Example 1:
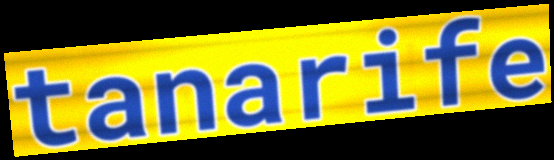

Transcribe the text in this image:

tanarife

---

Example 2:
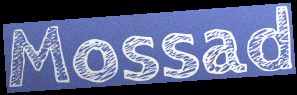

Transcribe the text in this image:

Mossad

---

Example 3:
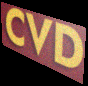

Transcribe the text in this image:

CVD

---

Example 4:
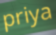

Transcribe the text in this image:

priya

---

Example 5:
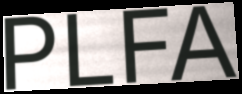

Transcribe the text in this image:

PLFA